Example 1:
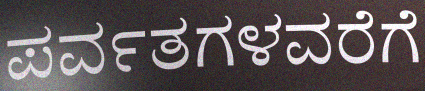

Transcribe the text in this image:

ಪರ್ವತಗಳವರೆಗೆ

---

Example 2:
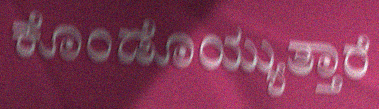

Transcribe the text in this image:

ಕೊಂಡೊಯ್ಯುತ್ತಾರೆ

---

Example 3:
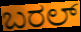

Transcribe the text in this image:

ಬರಲ್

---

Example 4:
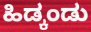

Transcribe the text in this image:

ಹಿಡ್ಕಂಡು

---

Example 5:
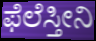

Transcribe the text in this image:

ಫೆಲೆಸ್ತೀನಿ